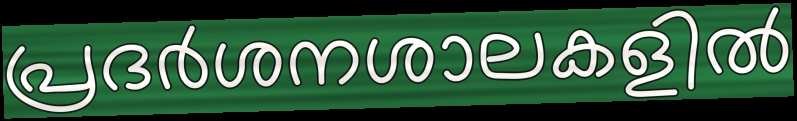
പ്രദർശനശാലകളിൽ